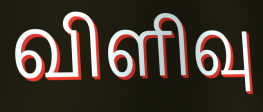
விளிவு